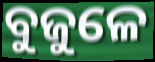
ବୁଜୁଳେ